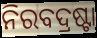
ନିରବଦ୍ରଷ୍ଟା